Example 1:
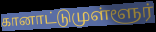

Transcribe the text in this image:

கானாட்டுமுள்ளூர்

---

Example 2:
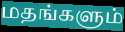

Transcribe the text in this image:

மதங்களும்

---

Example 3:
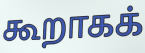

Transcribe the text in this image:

கூறாகக்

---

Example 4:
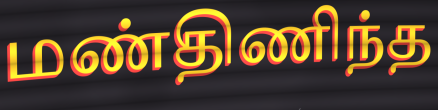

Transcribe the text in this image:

மண்திணிந்த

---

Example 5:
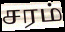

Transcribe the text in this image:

சரம்